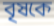
বৃষকে